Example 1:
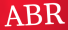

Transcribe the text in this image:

ABR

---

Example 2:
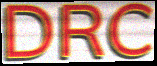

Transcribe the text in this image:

DRC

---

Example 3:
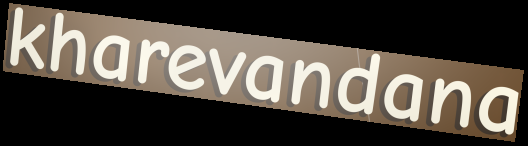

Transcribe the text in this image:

kharevandana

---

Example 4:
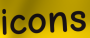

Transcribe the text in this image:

icons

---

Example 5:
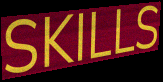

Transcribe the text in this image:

SKILLS